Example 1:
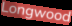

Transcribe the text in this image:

Longwood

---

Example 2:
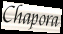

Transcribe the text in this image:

Chapora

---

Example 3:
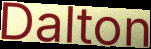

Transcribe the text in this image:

Dalton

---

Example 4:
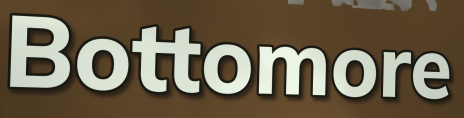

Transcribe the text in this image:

Bottomore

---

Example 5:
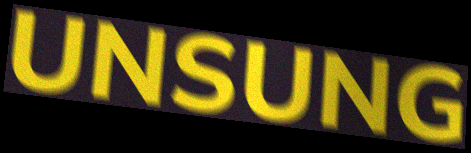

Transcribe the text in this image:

UNSUNG